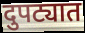
दुपट्यात